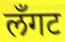
लँगट